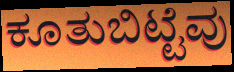
ಕೂತುಬಿಟ್ಟೆವು